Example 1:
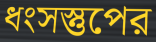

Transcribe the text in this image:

ধংসস্তুপের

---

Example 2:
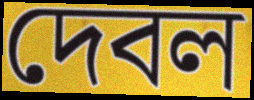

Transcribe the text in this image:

দেবল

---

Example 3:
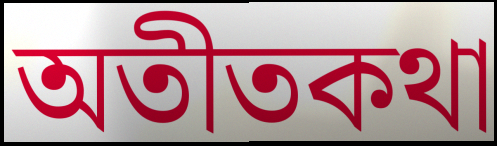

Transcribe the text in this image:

অতীতকথা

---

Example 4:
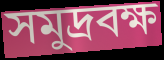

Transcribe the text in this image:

সমুদ্রবক্ষ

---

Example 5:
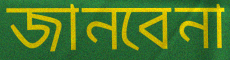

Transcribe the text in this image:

জানবেনা